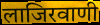
लाजिरवाणी